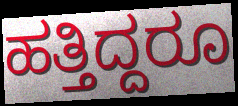
ಹತ್ತಿದ್ದರೂ